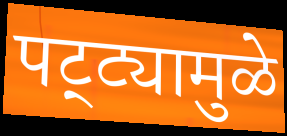
पट्ट्यामुळे